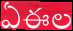
ఏఈల